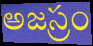
అజస్రం